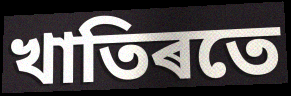
খাতিৰতে